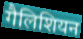
गैलिशियन